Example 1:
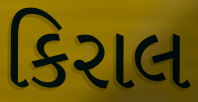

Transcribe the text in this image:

કિરાલ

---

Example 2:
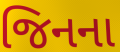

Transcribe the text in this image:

જિનના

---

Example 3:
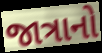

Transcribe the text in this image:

જાત્રાનો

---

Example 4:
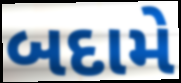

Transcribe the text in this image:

બદામે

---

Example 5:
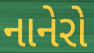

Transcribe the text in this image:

નાનેરો